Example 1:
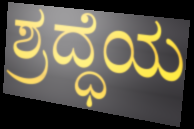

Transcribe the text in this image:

ಶ್ರದ್ಧೆಯ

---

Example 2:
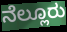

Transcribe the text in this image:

ನೆಲ್ಲೂರು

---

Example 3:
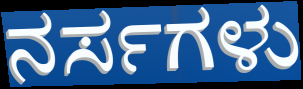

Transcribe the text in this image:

ನರ್ಸಗಳು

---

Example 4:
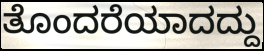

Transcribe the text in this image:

ತೊಂದರೆಯಾದದ್ದು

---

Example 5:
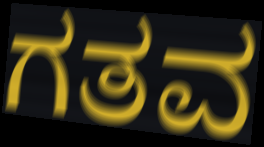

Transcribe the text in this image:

ಗತವ